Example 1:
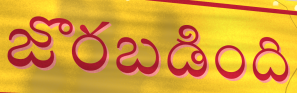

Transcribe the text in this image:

జొరబడింది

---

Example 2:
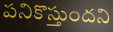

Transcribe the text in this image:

పనికొస్తుందని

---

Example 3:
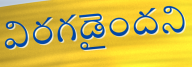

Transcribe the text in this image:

విరగడైందని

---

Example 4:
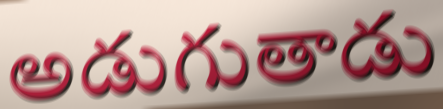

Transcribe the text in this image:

అడుగుతాడు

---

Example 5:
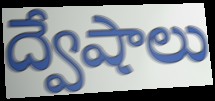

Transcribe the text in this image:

ద్వేషాలు